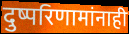
दुष्परिणामांनाही